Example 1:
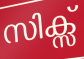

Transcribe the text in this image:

സിക്സ്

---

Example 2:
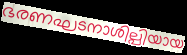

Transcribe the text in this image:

ഭരണഘടനാശില്പിയായ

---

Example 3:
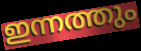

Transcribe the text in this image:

ഇന്നത്തും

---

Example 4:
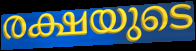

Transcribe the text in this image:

രക്ഷയുടെ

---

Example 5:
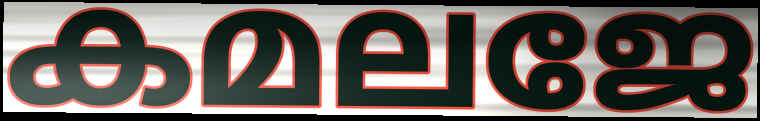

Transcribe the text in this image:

കമലജേ